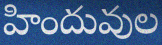
హిందువుల